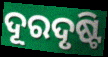
ଦୂରଦୃଷ୍ଟି